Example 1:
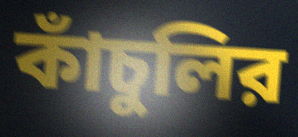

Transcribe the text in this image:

কাঁচুলির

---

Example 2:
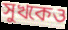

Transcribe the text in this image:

সুখকেও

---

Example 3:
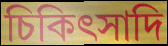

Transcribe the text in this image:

চিকিৎসাদি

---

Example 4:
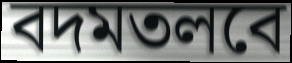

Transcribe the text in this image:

বদমতলবে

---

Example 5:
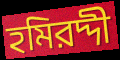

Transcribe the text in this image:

হমিরদ্দী